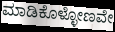
ಮಾಡಿಕೊಳ್ಳೋಣವೇ